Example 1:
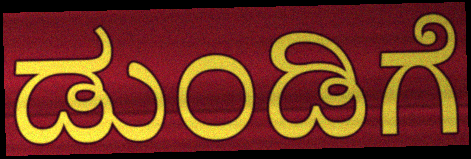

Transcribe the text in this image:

ಡುಂಡಿಗೆ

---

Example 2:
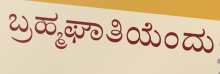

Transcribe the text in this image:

ಬ್ರಹ್ಮಘಾತಿಯೆಂದು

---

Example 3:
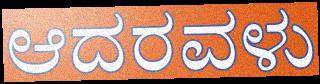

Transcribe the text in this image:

ಆದರವಳು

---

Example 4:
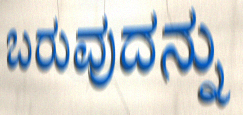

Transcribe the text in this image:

ಬರುವುದನ್ನು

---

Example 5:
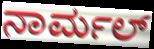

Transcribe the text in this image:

ನಾರ್ಮಲ್